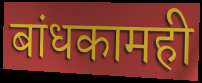
बांधकामही